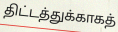
திட்டத்துக்காகத்